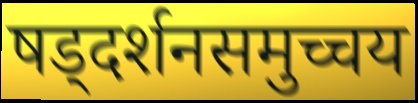
षड्दर्शनसमुच्चय